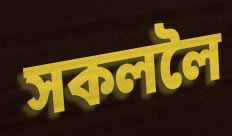
সকললৈ